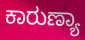
ಕಾರುಣ್ಯಾ